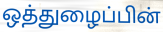
ஒத்துழைப்பின்